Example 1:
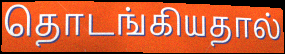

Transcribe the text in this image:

தொடங்கியதால்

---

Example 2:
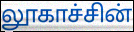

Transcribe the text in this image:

லூகாச்சின்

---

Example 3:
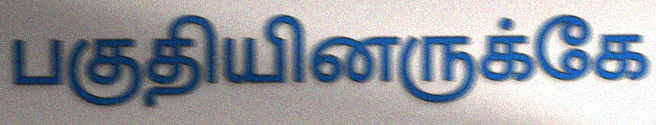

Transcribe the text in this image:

பகுதியினருக்கே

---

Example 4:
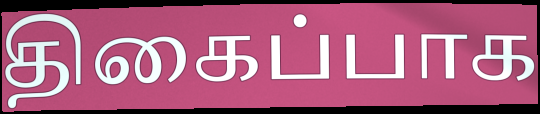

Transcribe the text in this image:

திகைப்பாக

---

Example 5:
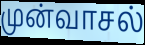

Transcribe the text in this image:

முன்வாசல்